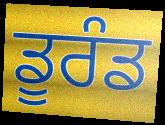
ਡੂਰੰਡ